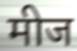
मीज